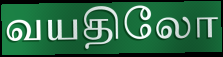
வயதிலோ